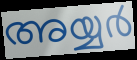
അയ്യർ